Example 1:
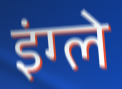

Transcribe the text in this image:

इंग्ले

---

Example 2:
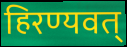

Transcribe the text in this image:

हिरण्यवत्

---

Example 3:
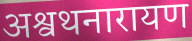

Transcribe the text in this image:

अश्वथनारायण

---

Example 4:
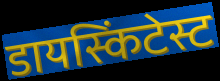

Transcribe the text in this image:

डायस्किंटेस्ट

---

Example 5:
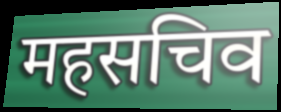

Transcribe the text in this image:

महसचिव